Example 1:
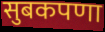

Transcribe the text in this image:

सुबकपणा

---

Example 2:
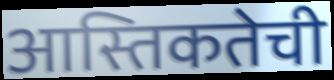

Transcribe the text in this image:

आस्तिकतेची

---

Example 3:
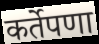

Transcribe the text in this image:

कर्तेपणा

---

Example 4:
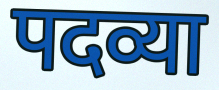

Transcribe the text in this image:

पदव्या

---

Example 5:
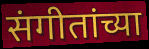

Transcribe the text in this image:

संगीतांच्या